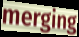
merging